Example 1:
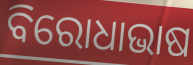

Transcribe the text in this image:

ବିରୋଧାଭାଷ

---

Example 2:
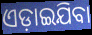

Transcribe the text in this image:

ଏଡ଼ାଇଯିବା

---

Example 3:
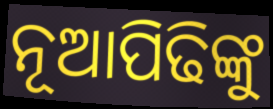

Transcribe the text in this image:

ନୂଆପିଢିଙ୍କୁ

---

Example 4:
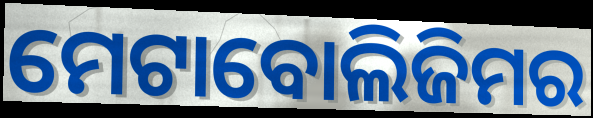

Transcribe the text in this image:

ମେଟାବୋଲିଜିମର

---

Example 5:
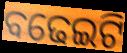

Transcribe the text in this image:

ବଢେଇଟି